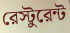
রেস্টুরেন্ট